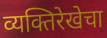
व्यक्तिरेखेचा